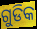
ଗୁଡିକ